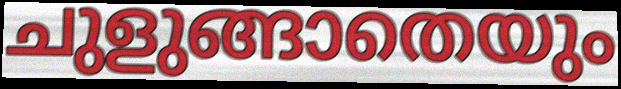
ചുളുങ്ങാതെയും